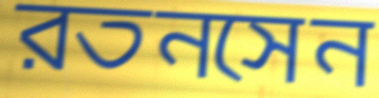
রতনসেন